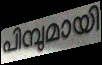
പിമ്പുമായി